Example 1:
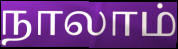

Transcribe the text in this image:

நாலாம்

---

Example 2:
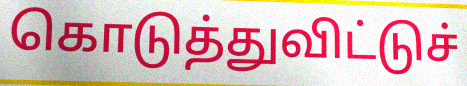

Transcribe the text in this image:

கொடுத்துவிட்டுச்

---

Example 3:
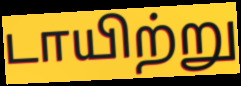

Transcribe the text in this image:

டாயிற்று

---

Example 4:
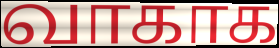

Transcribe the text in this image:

வாகாக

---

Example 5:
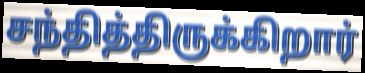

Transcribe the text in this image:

சந்தித்திருக்கிறார்